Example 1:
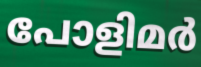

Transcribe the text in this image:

പോളിമർ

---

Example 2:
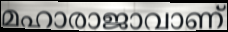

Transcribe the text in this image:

മഹാരാജാവാണ്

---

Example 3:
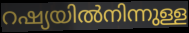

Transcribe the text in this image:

റഷ്യയിൽനിന്നുള്ള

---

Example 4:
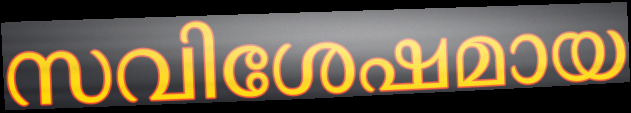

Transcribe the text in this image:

സവിശേഷമായ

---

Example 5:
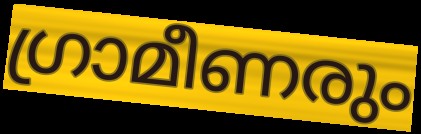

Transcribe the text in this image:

ഗ്രാമീണരും